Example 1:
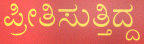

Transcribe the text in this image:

ಪ್ರೀತಿಸುತ್ತಿದ್ದ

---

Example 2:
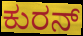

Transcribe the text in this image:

ಕುರನ್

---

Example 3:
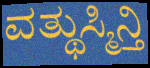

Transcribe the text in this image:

ವತ್ಥುಸ್ಮಿನ್ತಿ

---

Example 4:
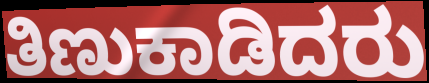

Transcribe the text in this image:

ತಿಣುಕಾಡಿದರು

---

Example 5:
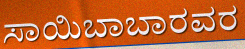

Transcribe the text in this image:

ಸಾಯಿಬಾಬಾರವರ